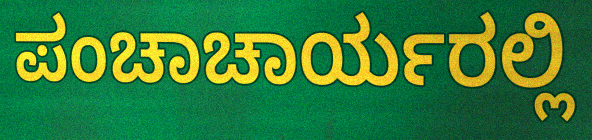
ಪಂಚಾಚಾರ್ಯರಲ್ಲಿ